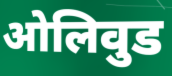
ओलिवुड